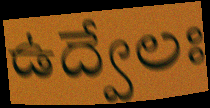
ఉద్వేలః